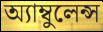
অ্যাম্বুলেন্স